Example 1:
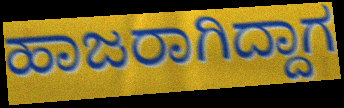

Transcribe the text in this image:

ಹಾಜರಾಗಿದ್ದಾಗ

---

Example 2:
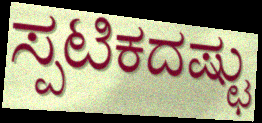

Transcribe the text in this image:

ಸ್ಪಟಿಕದಷ್ಟು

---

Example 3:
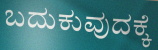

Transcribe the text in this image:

ಬದುಕುವುದಕ್ಕೆ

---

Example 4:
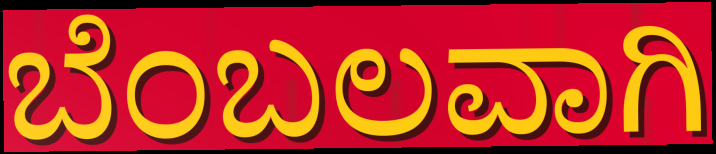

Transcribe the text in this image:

ಬೆಂಬಲವಾಗಿ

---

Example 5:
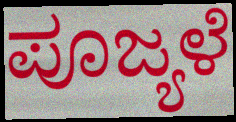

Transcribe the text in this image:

ಪೂಜ್ಯಳೆ